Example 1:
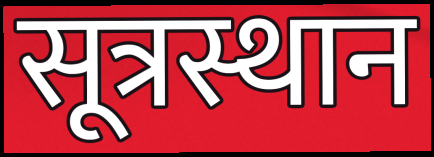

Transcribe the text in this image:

सूत्रस्थान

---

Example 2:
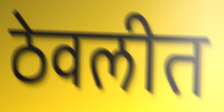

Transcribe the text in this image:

ठेवलीत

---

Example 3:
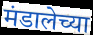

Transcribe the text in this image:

मंडालेच्या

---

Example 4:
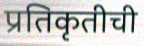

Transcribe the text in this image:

प्रतिकृतीची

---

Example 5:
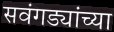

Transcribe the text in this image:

सवंगड्यांच्या